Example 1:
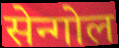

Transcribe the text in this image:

सेन्गोल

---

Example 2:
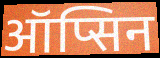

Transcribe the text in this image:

ऑप्सिन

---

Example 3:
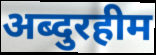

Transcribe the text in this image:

अब्दुरहीम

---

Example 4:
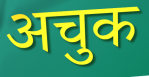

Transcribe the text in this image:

अचुक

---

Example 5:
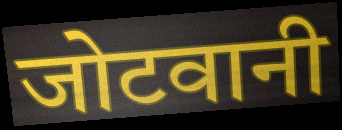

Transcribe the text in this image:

जोटवानी